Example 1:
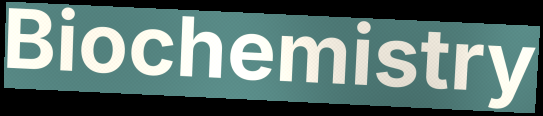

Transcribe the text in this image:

Biochemistry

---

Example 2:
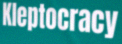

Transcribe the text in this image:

Kleptocracy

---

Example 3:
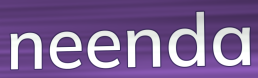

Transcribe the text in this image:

neenda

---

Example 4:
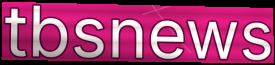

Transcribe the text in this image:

tbsnews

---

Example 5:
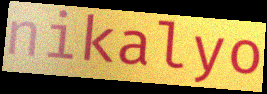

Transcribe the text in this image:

nikalyo